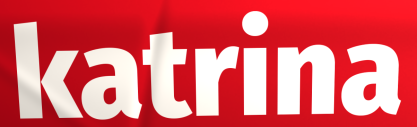
katrina